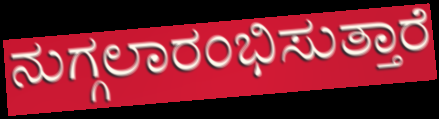
ನುಗ್ಗಲಾರಂಭಿಸುತ್ತಾರೆ